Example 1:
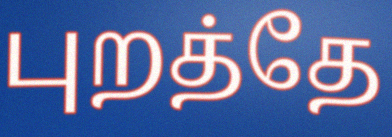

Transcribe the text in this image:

புறத்தே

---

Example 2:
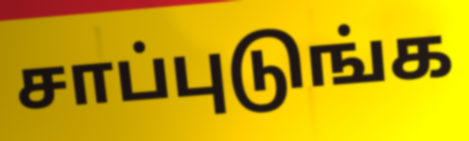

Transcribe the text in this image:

சாப்புடுங்க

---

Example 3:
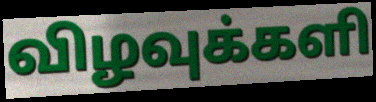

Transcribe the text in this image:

விழவுக்களி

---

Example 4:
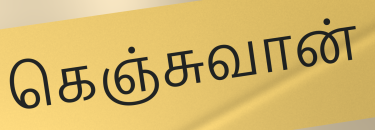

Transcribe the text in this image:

கெஞ்சுவான்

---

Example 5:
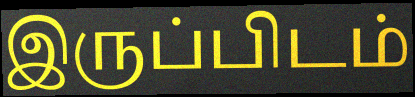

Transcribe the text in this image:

இருப்பிடம்